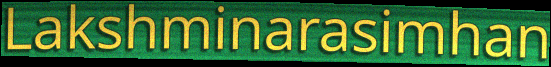
Lakshminarasimhan